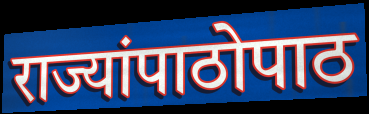
राज्यांपाठोपाठ